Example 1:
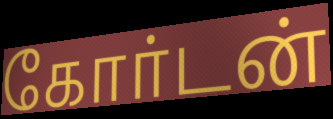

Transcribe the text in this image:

கோர்டன்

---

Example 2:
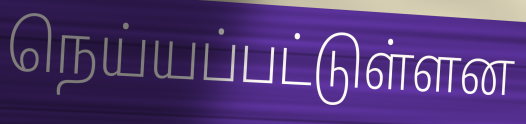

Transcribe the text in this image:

நெய்யப்பட்டுள்ளன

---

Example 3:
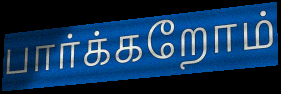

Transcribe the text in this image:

பார்க்கறோம்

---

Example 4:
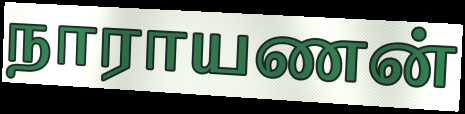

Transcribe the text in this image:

நாராயணன்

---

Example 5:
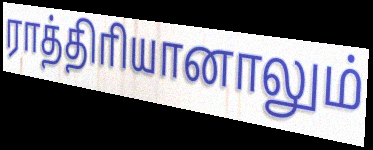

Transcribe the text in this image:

ராத்திரியானாலும்